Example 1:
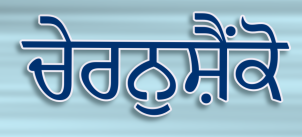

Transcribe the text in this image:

ਚੇਰਨੁਸ਼ੈਂਕੋ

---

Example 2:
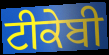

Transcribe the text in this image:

ਟੀਕੇਬੀ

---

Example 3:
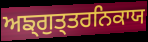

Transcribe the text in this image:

ਅਙ੍ਗੁਤ੍ਤਰਨਿਕਾਯ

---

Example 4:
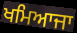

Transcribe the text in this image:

ਖਮਿਆਜਾ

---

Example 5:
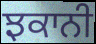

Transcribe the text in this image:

ਝਕਾਨੀ